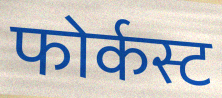
फोर्कस्ट